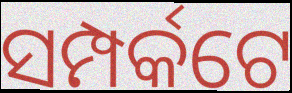
ସମ୍ପର୍କଟେ